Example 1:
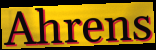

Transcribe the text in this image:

Ahrens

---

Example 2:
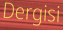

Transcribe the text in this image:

Dergisi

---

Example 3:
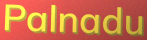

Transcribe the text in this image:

Palnadu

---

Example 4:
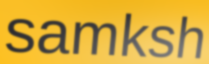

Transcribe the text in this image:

samksh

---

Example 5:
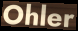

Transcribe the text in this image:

Ohler